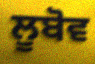
ਲੂਬੋਵ